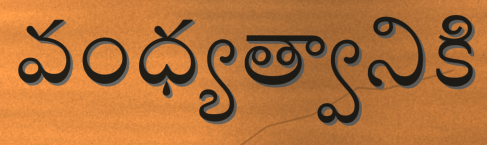
వంధ్యత్వానికి